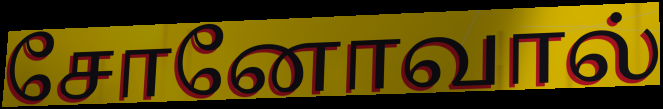
சோனோவால்